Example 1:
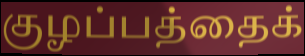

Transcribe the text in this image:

குழப்பத்தைக்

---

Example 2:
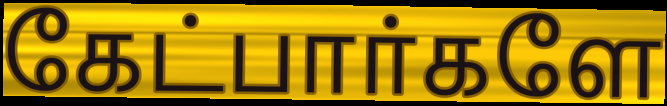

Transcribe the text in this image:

கேட்பார்களே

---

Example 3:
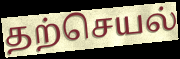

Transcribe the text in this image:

தற்செயல்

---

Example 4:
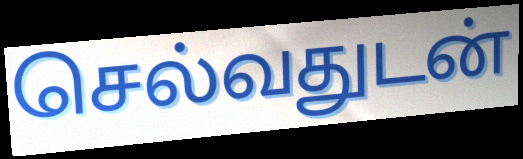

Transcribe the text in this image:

செல்வதுடன்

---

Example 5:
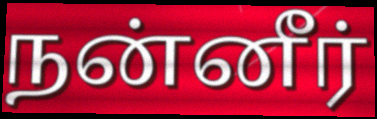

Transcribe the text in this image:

நன்னீர்